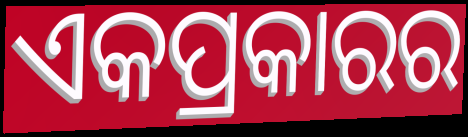
ଏକପ୍ରକାରର